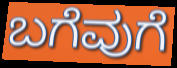
ಬಗೆವುಗೆ